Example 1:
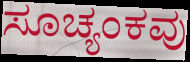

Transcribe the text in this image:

ಸೂಚ್ಯಂಕವು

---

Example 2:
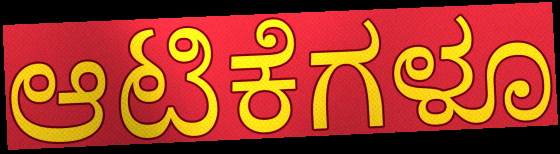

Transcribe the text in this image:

ಆಟಿಕೆಗಳೂ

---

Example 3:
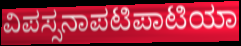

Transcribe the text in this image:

ವಿಪಸ್ಸನಾಪಟಿಪಾಟಿಯಾ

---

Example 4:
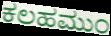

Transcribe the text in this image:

ಕಲಹಮುಂ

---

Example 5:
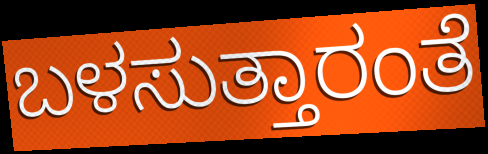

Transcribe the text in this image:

ಬಳಸುತ್ತಾರಂತೆ